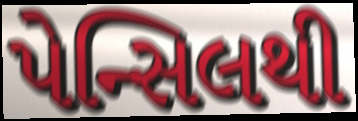
પેન્સિલથી